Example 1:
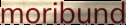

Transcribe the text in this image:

moribund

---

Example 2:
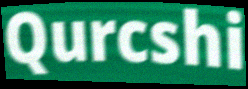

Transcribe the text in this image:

Qurcshi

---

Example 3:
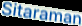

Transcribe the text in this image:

Sitaraman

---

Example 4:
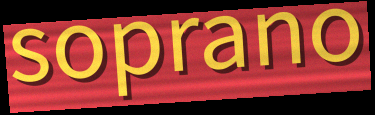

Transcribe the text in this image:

soprano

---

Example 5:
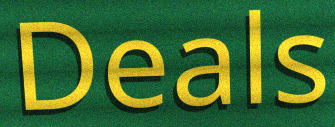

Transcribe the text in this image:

Deals